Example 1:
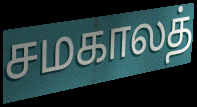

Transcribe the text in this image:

சமகாலத்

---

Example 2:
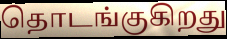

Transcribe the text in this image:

தொடங்குகிறது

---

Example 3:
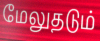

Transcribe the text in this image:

மேலுதடும்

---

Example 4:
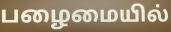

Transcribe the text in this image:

பழைமையில்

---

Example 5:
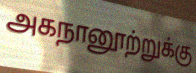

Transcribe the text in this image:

அகநானூற்றுக்கு